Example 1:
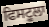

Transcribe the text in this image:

ਫਿਸਟੂਲਾ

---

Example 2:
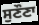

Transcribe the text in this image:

ਸੁਣੌਣਾ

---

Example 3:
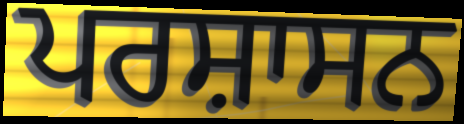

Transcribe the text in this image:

ਪਰਸ਼ਾਸਨ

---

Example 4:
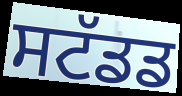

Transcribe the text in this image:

ਸਟੱਡਡ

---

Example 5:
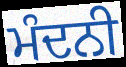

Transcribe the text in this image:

ਮੰਦਨੀ